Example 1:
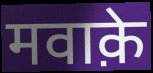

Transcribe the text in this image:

मवाक़े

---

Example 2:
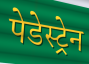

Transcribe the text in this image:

पेडेस्ट्रेन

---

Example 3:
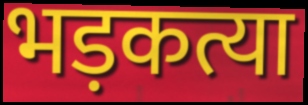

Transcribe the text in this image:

भड़कत्या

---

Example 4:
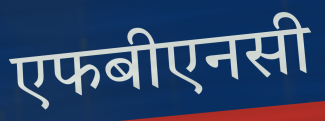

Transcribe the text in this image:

एफबीएनसी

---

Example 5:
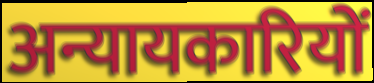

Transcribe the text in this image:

अन्यायकारियों